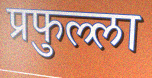
प्रफुल्ला